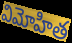
విమోహిత